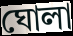
ঘোলা